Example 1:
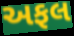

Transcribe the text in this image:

અફલ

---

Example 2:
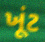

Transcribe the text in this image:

ખૂંટ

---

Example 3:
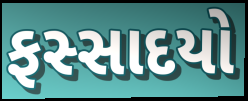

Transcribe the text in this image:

ફસ્સાદયો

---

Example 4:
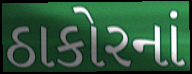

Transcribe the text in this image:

ઠાકોરનાં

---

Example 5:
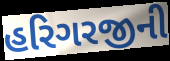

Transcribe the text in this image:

હરિગરજીની